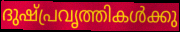
ദുഷ്പ്രവൃത്തികൾക്കു